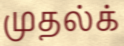
முதல்க்